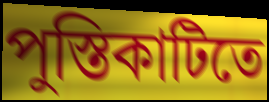
পুস্তিকাটিতে